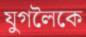
যুগলৈকে